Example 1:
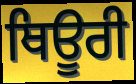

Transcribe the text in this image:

ਥਿਊਰੀ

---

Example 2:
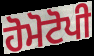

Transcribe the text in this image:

ਹੋਮੋਟੋਪੀ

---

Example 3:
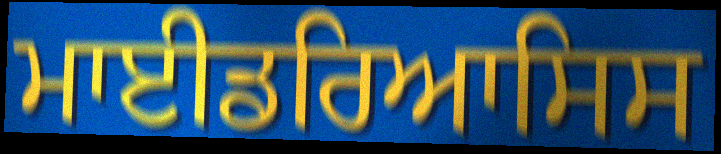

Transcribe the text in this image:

ਮਾਈਡਰਿਆਸਿਸ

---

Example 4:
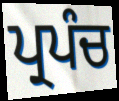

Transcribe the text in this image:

ਪ੍ਰਪੰਚ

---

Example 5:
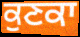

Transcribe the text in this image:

ਕੁਣਕਾ